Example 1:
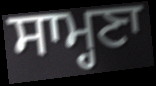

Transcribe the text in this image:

ਸਾਮ੍ਹਣਾ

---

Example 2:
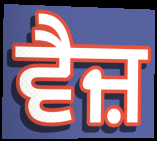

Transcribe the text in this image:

ਵੈਜ਼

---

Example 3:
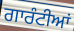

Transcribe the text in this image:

ਗਾਰੰਟੀਆਂ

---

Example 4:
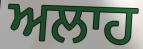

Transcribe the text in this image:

ਅਲਾਹ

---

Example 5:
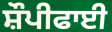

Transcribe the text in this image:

ਸ਼ੌਪੀਫਾਈ